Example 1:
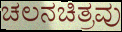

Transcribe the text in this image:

ಚಲನಚಿತ್ರವು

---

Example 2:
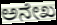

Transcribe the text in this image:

ಅನೇಖ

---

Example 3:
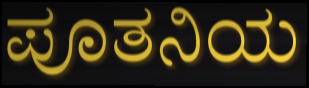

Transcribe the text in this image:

ಪೂತನಿಯ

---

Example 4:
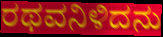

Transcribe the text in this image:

ರಥವನಿಳಿದನು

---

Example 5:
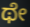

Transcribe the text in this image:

ಥೇ